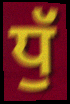
ਧੁੱ